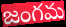
జంగమ